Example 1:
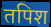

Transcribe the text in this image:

तपिश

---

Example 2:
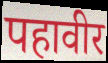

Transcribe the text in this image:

पहावीर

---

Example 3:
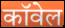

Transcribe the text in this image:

कॉवेल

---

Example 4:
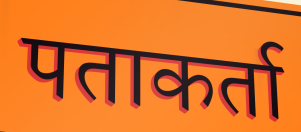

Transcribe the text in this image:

पताकर्ता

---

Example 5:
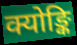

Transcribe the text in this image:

क्योङ्कि